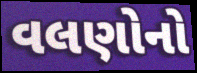
વલણોનો